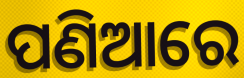
ପଣିଆରେ